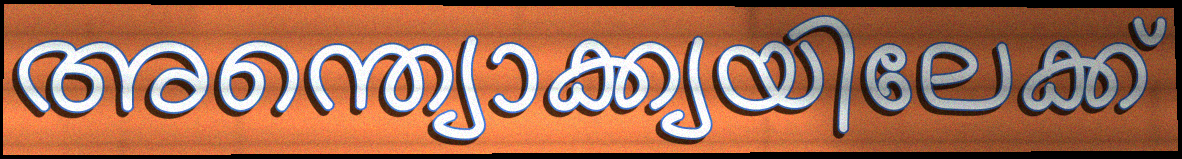
അന്ത്യൊക്ക്യയിലേക്ക്